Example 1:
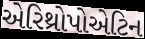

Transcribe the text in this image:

એરિથ્રોપોએટિન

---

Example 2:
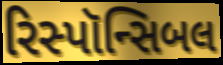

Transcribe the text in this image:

રિસ્પૉન્સિબલ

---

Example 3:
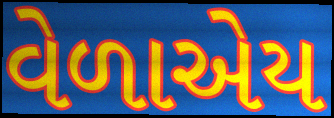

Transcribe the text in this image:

વેળાએય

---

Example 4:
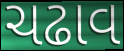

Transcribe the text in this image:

ચઢાવ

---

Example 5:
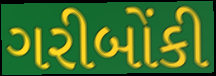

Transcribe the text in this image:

ગરીબોંકી